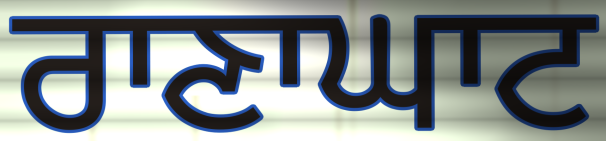
ਰਾਣਾਘਾਟ